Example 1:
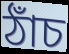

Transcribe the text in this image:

ঠাঁচ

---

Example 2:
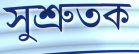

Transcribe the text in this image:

সুশ্ৰুতক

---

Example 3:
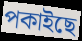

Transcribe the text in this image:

পকাইছে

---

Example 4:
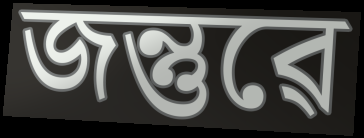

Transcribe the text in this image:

জন্তুৱে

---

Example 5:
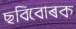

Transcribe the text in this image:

ছবিবোৰক